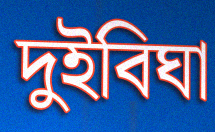
দুইবিঘা